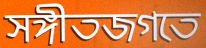
সঙ্গীতজগতে